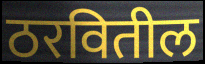
ठरवितील